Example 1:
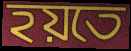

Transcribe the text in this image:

হয়তে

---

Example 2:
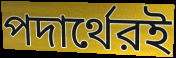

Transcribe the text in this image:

পদার্থেরই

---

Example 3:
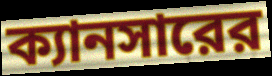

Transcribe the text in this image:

ক্যানসারের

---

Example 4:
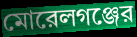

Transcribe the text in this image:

মোরেলগঞ্জের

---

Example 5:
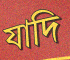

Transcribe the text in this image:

যাদি